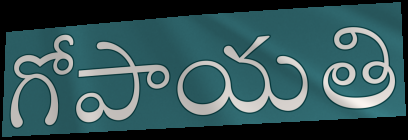
గోపాయతి